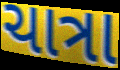
ચાત્રા